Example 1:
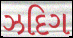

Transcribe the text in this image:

ઝદિગ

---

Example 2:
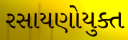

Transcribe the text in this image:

રસાયણોયુક્ત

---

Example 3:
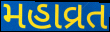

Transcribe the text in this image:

મહાવ્રત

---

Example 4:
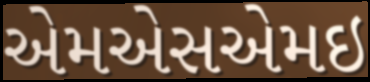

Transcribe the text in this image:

એમએસએમઇ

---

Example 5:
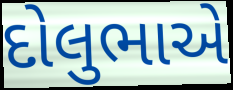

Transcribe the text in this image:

દોલુભાએ